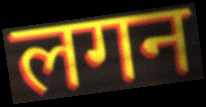
लगन